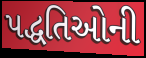
પદ્ધતિઓની